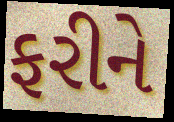
ફરીને